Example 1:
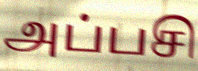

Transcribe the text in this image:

அப்பசி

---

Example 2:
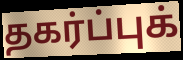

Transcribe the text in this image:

தகர்ப்புக்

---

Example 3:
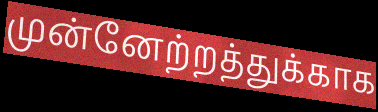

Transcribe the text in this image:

முன்னேற்றத்துக்காக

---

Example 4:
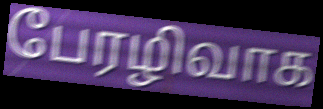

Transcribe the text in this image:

பேரழிவாக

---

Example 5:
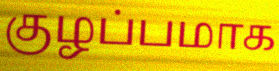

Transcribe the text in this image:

குழப்பமாக